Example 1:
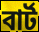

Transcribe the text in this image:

বার্ট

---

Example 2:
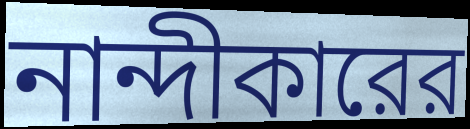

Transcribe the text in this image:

নান্দীকারের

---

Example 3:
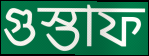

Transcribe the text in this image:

গুস্তাফ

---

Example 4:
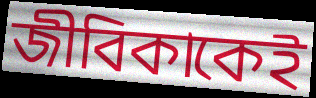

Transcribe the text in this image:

জীবিকাকেই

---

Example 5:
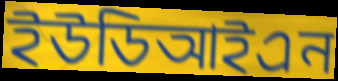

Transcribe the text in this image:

ইউডিআইএন